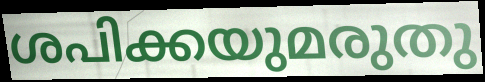
ശപിക്കയുമരുതു